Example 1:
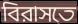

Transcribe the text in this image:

বিরাসতে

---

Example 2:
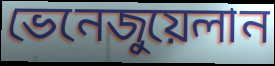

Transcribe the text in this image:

ভেনেজুয়েলান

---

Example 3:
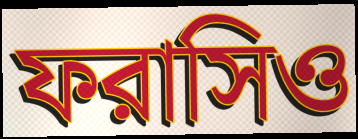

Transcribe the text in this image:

ফরাসিও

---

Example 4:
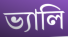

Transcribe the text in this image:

ভ্যালি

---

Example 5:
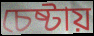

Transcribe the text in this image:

চেষ্টায়